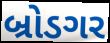
બ્રોડગર